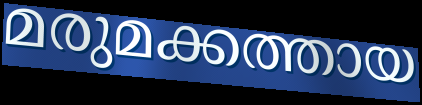
മരുമക്കത്തായ